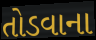
તોડવાના